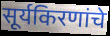
सूर्यकिरणांचे